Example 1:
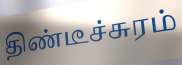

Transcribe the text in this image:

திண்டீச்சுரம்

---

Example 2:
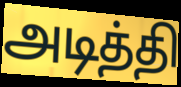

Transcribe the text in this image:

அடித்தி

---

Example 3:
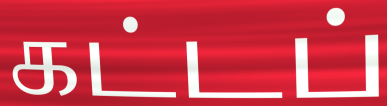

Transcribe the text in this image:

கட்டப்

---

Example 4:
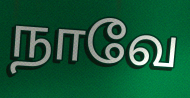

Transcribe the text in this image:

நாவே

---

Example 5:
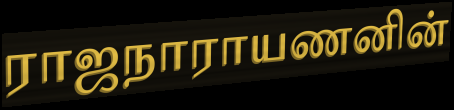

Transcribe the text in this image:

ராஜநாராயணனின்